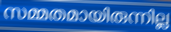
സമ്മതമായിരുന്നില്ല